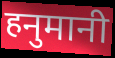
हनुमानी